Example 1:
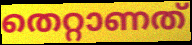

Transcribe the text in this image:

തെറ്റാണത്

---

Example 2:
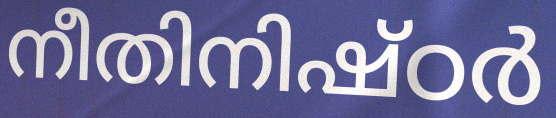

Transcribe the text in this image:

നീതിനിഷ്ഠർ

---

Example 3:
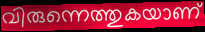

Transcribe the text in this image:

വിരുന്നെത്തുകയാണ്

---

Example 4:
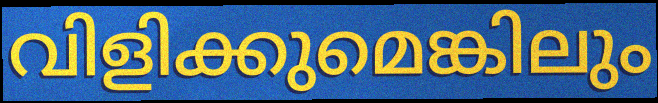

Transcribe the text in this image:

വിളിക്കുമെങ്കിലും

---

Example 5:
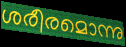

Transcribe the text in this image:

ശരീരമൊന്നു